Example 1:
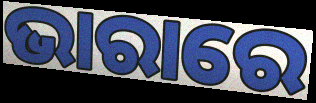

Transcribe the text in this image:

ଭାରାରେ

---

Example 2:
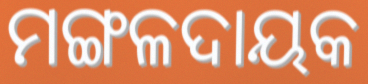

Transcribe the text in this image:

ମଙ୍ଗଳଦାୟକ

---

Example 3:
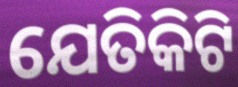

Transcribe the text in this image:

ଯେତିକିଟି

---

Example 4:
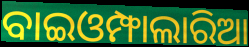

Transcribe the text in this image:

ବାଇଓମ୍ଫାଲାରିଆ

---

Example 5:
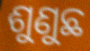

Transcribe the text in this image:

ଶୁଣୁଛ